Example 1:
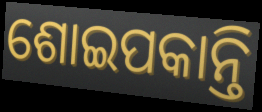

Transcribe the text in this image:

ଶୋଇପକାନ୍ତି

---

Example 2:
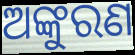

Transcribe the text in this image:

ଅଙ୍କୁରଣ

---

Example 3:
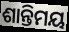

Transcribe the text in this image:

ଶାନ୍ତିମୟ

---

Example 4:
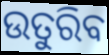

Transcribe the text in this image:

ଉତୁରିବ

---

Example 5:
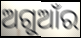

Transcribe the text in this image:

ଅଗୁଆଁର